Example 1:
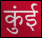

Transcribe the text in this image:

कुंई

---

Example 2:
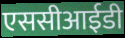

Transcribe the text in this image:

एससीआईडी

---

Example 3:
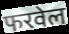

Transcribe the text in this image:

फरवेल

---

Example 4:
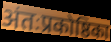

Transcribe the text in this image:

अंतःप्रकोष्ठिका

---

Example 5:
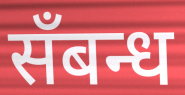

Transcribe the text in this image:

सँबन्ध